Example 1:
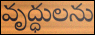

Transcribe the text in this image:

వృద్ధులను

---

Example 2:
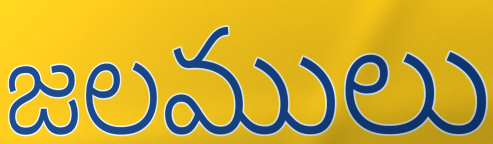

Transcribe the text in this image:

జలములు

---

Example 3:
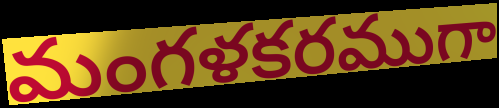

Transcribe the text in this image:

మంగళకరముగా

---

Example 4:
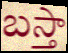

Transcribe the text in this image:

బస్తా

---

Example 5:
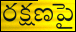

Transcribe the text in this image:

రక్షణపై